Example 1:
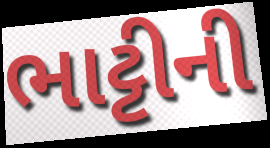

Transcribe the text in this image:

ભાટ્ટીની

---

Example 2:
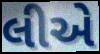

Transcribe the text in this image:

લીએ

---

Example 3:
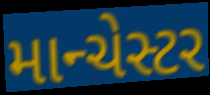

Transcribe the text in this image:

માન્ચેસ્ટર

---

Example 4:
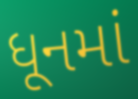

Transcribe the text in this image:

ધૂનમાં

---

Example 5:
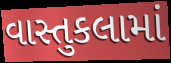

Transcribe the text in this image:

વાસ્તુકલામાં